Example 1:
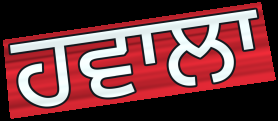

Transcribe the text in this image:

ਹਵਾਲਾ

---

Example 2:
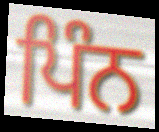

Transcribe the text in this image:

ਪਿੰਨ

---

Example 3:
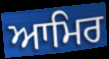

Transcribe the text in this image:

ਆਮਿਰ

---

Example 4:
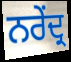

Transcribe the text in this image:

ਨਰੇਂਦ੍ਰ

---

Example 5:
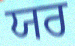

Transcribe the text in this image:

ਯਰ